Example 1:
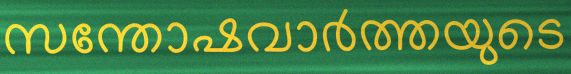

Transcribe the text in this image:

സന്തോഷവാർത്തയുടെ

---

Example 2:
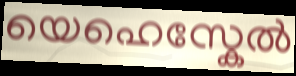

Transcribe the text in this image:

യെഹെസ്കേൽ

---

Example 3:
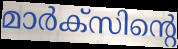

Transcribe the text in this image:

മാർക്സിന്റെ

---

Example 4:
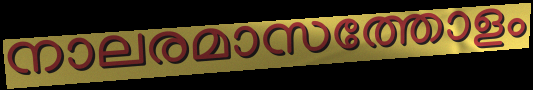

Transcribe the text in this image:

നാലരമാസത്തോളം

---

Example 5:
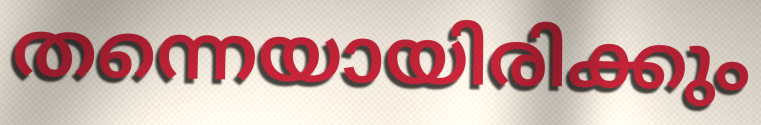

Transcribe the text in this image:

തന്നെയായിരിക്കും